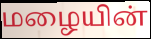
மழையின்